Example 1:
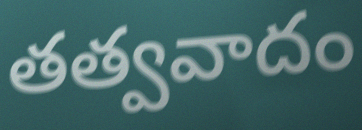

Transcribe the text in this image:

తత్వవాదం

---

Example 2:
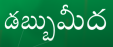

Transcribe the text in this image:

డబ్బుమీద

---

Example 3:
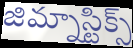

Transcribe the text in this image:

జిమ్నాస్టిక్స్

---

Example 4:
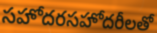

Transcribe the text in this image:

సహోదరసహోదరీలతో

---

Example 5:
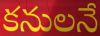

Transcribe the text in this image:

కనులనే